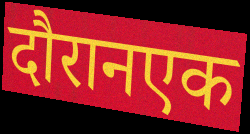
दौरानएक